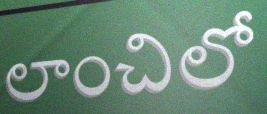
లాంచిలో